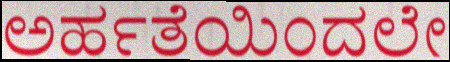
ಅರ್ಹತೆಯಿಂದಲೇ